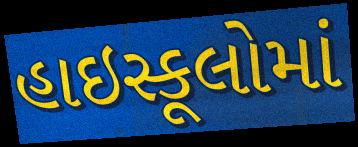
હાઇસ્કૂલોમાં